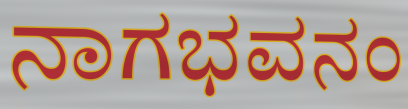
ನಾಗಭವನಂ